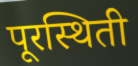
पूरस्थिती